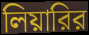
লিয়ারির